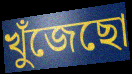
খুঁজেছো